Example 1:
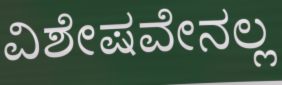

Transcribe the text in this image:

ವಿಶೇಷವೇನಲ್ಲ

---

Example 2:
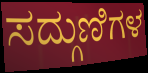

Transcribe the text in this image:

ಸದ್ಗುಣಿಗಳ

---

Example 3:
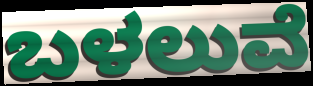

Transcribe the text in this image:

ಬಳಲುವೆ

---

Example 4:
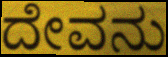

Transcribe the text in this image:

ದೇವನು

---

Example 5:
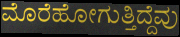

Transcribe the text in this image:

ಮೊರೆಹೋಗುತ್ತಿದ್ದೆವು